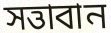
সত্তাবান